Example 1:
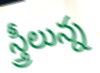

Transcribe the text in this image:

స్త్రీలున్న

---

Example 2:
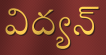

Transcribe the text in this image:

విద్యన్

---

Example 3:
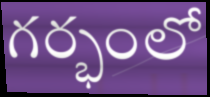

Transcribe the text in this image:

గర్భంలో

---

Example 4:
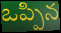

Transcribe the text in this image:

ఒప్పిన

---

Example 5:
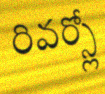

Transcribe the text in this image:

రివర్స్లో